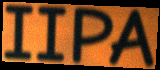
IIPA